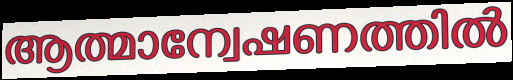
ആത്മാന്വേഷണത്തിൽ